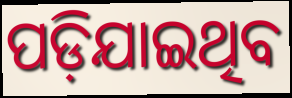
ପଡ଼ିଯାଇଥିବ